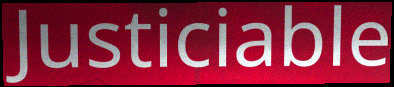
Justiciable